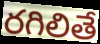
రగిలితే